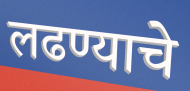
लढण्याचे